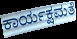
ಕಾರ್ಯಕ್ಷಮತೆ